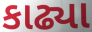
કાઢ્યા